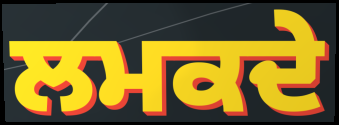
ਲਮਕਦੇ